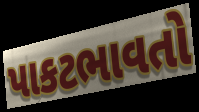
પાકટભાવતો